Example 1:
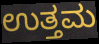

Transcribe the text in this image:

ಉತ್ತಮ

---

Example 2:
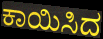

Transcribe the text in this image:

ಕಾಯಿಸಿದ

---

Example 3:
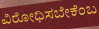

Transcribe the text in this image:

ವಿರೋಧಿಸಬೇಕೆಂಬ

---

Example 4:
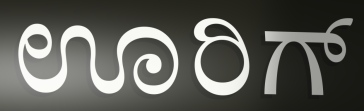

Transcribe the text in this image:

ಊರಿಗ್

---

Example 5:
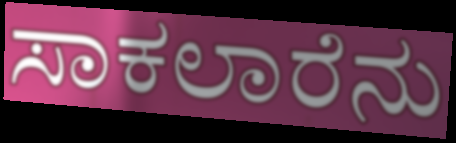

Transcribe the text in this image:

ಸಾಕಲಾರೆನು